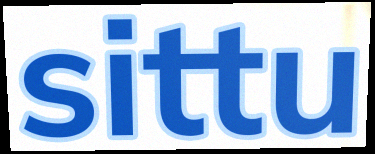
sittu